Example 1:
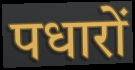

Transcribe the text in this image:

पधारों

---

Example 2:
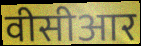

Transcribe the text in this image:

वीसीआर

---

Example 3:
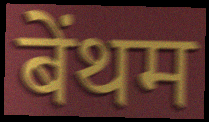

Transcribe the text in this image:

बेंथम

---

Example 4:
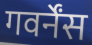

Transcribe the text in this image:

गवर्नेंस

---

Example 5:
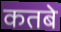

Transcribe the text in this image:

कतबे